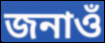
জনাওঁ